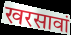
खरसावां